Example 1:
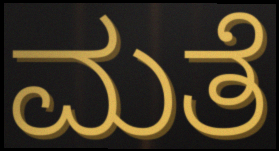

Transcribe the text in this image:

ಮತೆ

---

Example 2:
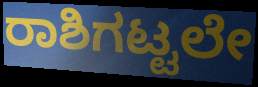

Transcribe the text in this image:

ರಾಶಿಗಟ್ಟಲೇ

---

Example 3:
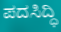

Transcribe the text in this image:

ಪದಸಿದ್ಧಿ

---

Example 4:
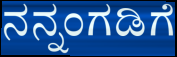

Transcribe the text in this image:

ನನ್ನಂಗಡಿಗೆ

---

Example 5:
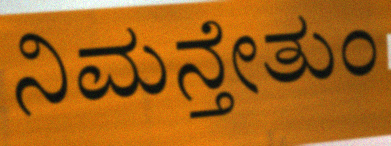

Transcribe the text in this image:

ನಿಮನ್ತೇತುಂ